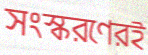
সংস্করণেরই